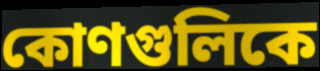
কোণগুলিকে